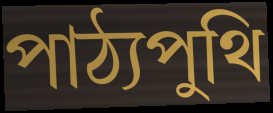
পাঠ্যপুথি